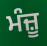
ਮੰਜ਼ੂ